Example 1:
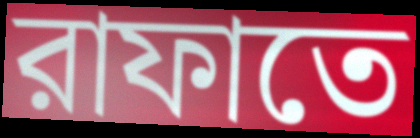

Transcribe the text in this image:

রাফাতে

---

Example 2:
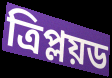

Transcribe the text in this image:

ত্রিপ্লয়ড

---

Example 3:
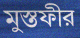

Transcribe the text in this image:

মুস্তফীর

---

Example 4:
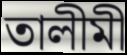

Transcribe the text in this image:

তালীমী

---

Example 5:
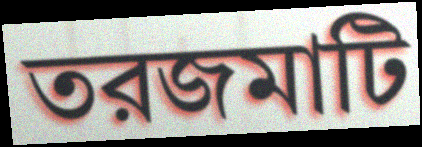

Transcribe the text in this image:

তরজমাটি